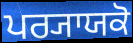
ਪਰ੍ਯਾਯਕੋ